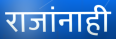
राजांनाही